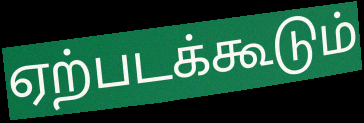
ஏற்படக்கூடும்